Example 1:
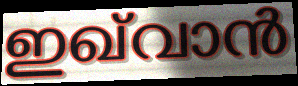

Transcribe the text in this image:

ഇഖ്‌വാൻ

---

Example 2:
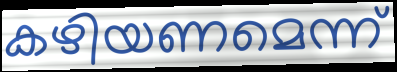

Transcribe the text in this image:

കഴിയണമെന്ന്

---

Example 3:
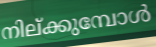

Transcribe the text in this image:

നില്ക്കുമ്പോൾ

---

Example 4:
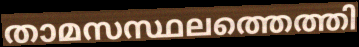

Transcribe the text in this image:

താമസസ്ഥലത്തെത്തി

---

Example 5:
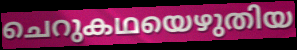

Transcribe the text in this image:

ചെറുകഥയെഴുതിയ